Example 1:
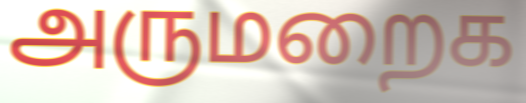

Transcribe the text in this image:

அருமறைக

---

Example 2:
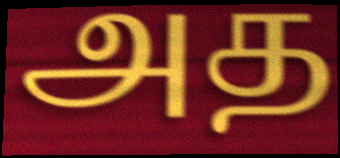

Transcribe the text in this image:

அத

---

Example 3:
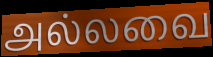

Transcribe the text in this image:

அல்லவை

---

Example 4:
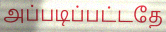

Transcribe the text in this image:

அப்படிப்பட்டதே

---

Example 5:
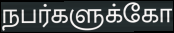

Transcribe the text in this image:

நபர்களுக்கோ